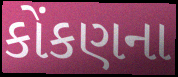
કોંકણના